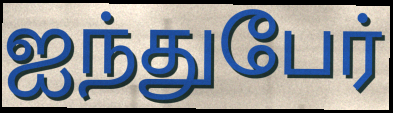
ஐந்துபேர்